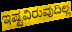
ಇಷ್ಟವಿರುವುದಿಲ್ಲ